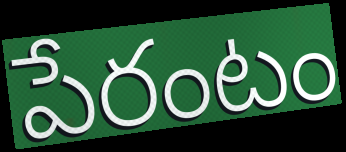
పేరంటం